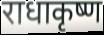
राधाकृष्ण